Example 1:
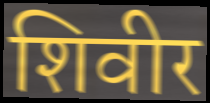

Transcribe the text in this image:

शिवीर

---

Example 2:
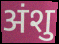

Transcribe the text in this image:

अंशु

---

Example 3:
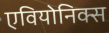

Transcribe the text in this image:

एवियोनिक्स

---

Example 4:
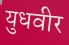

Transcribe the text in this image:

युधवीर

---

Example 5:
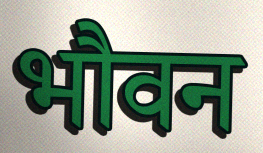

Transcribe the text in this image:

भौवन